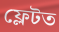
ফ্লেটত